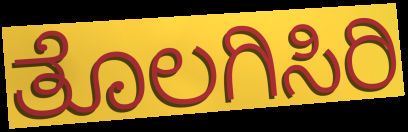
ತೊಲಗಿಸಿರಿ